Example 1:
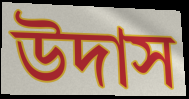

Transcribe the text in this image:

উদাস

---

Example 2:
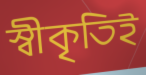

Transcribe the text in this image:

স্বীকৃতিই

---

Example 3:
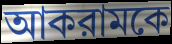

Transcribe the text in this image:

আকরামকে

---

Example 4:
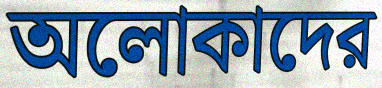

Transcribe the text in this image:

অলোকাদের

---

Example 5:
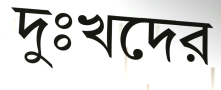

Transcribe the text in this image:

দুঃখদের